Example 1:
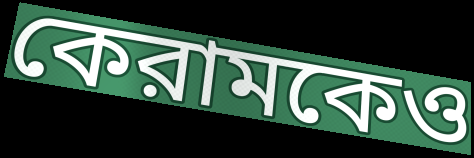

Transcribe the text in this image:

কেরামকেও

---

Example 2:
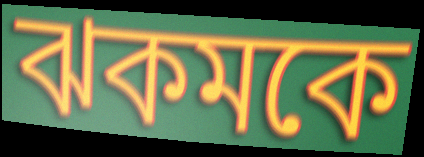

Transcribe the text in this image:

ঝকমকে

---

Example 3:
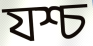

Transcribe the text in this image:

যশ্চ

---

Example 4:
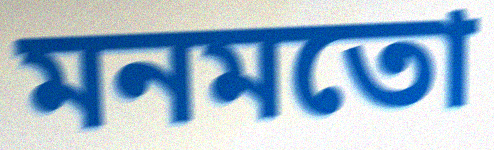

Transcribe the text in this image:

মনমতো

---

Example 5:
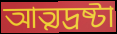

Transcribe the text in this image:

আত্মদ্রষ্টা